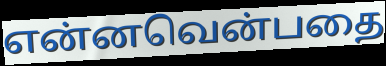
என்னவென்பதை